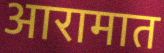
आरामात